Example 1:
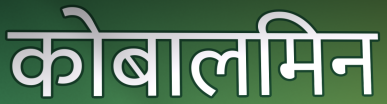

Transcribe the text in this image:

कोबालमिन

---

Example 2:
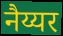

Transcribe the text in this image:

नैय्यर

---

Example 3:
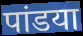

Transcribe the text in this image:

पांडया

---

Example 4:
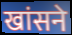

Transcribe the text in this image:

खांसने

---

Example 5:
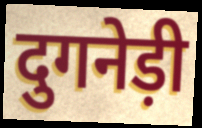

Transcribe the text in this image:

दुगनेड़ी